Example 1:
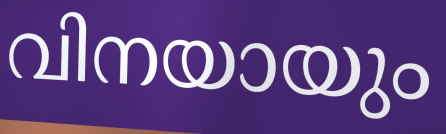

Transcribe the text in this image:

വിനയായും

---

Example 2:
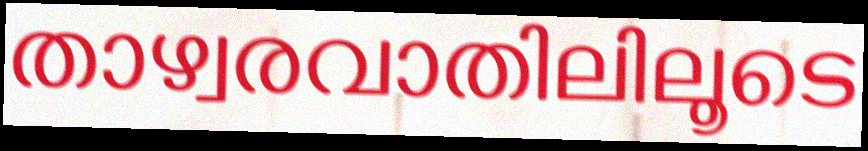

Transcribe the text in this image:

താഴ്വരവാതിലിലൂടെ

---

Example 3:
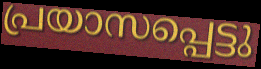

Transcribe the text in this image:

പ്രയാസപ്പെട്ടു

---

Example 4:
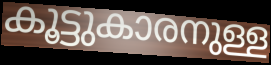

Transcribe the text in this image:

കൂട്ടുകാരനുള്ള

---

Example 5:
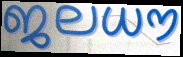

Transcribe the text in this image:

ജലധൗ